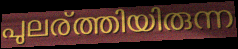
പുലര്ത്തിയിരുന്ന